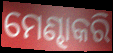
ମେଣ୍ଢାକରି